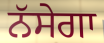
ਨੱਸੇਗਾ